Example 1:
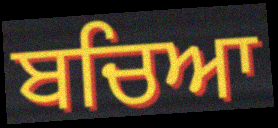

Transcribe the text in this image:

ਬਚਿਆ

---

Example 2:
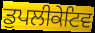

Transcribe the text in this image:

ਡੁਪਲੀਕੇਟਿਵ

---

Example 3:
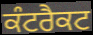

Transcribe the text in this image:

ਕੰਟਰੈਕਟ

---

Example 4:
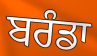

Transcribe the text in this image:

ਬਰੰਡਾ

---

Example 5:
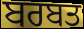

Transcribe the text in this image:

ਬਰਬਤ